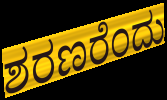
ಶರಣರೆಂದು